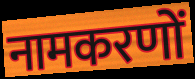
नामकरणों